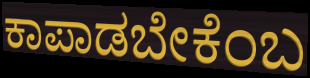
ಕಾಪಾಡಬೇಕೆಂಬ